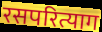
रसपरित्याग